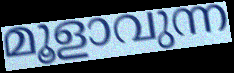
മൂളാവുന്ന